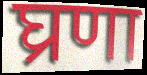
घ्रणा